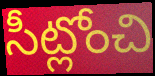
సీట్లోంచి